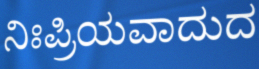
ನಿಃಪ್ರಿಯವಾದುದ